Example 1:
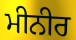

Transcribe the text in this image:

ਮੀਨੀਰ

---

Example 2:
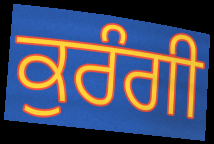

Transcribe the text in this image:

ਕੁਰੰਗੀ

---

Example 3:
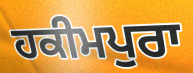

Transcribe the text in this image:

ਹਕੀਮਪੁਰਾ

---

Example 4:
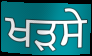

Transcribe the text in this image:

ਖੜਸੇ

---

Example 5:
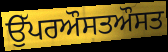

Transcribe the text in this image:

ਉੱਪਰਔਸਤਔਸਤ